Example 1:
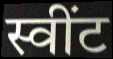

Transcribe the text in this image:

स्वींट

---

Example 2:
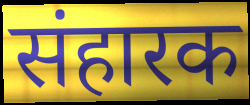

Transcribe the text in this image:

संहारक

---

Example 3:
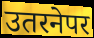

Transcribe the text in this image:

उतरनेपर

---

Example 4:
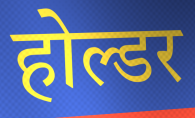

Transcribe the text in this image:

होल्डर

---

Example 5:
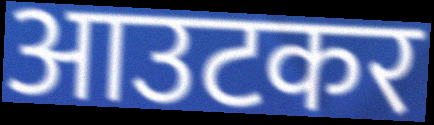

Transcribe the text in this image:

आउटकर